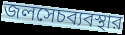
জলসেচব্যবস্থার